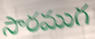
సారముగ